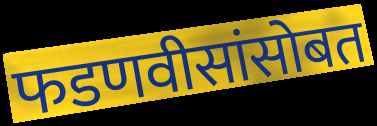
फडणवीसांसोबत